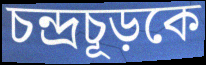
চন্দ্রচূড়কে